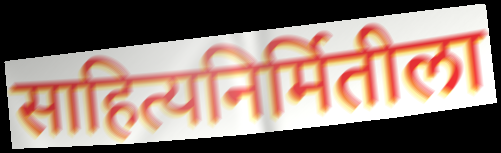
साहित्यनिर्मितीला